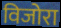
विजोरा